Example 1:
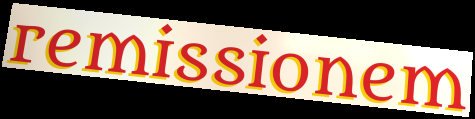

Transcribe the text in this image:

remissionem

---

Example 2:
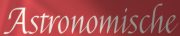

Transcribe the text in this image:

Astronomische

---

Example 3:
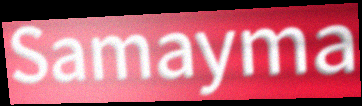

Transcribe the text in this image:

Samayma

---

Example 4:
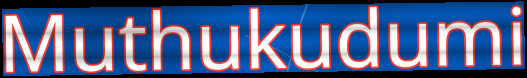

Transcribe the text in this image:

Muthukudumi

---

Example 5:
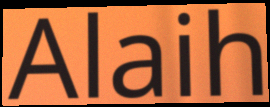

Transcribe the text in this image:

Alaih